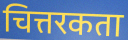
चित्तरकता